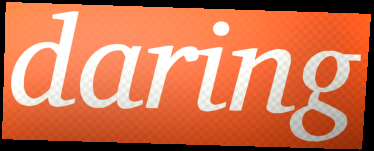
daring